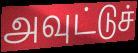
அவுட்டுச்